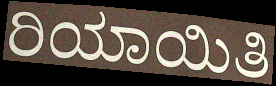
ರಿಯಾಯಿತಿ